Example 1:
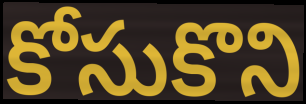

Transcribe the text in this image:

కోసుకొని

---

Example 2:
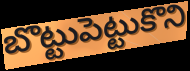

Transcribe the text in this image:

బొట్టుపెట్టుకొని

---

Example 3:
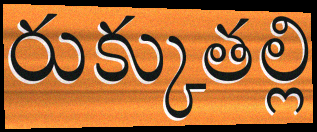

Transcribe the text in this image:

రుక్కుతల్లి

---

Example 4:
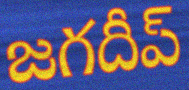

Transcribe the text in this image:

జగదీప్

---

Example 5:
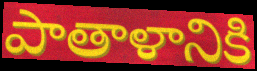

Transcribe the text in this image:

పాతాళానికి